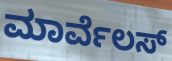
ಮಾರ್ವೆಲಸ್